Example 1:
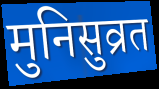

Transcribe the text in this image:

मुनिसुव्रत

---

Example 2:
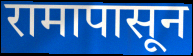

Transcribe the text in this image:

रामापासून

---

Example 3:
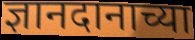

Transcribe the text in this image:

ज्ञानदानाच्या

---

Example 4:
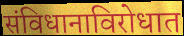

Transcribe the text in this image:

संविधानाविरोधात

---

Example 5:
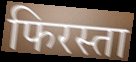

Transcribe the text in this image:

फिरस्ता